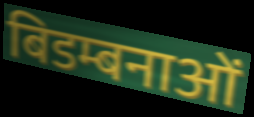
बिडम्बनाओं